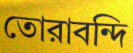
তোরাবন্দি